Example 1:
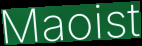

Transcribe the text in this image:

Maoist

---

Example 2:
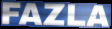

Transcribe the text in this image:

FAZLA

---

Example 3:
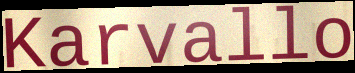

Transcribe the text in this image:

Karvallo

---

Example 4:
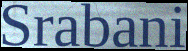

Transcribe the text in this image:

Srabani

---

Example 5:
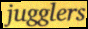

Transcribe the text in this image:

jugglers